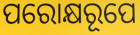
ପରୋକ୍ଷରୂପେ